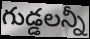
గుడ్డలన్నీ